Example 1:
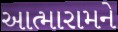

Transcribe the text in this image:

આત્મારામને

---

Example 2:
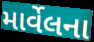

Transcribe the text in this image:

માર્વેલના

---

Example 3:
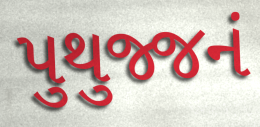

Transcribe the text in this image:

પુથુજ્જનં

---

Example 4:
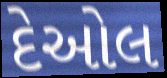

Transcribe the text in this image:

દેઓલ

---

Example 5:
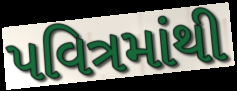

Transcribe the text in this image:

પવિત્રમાંથી